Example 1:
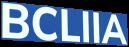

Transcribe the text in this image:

BCLIIA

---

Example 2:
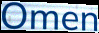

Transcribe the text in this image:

Omen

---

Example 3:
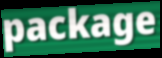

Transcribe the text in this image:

package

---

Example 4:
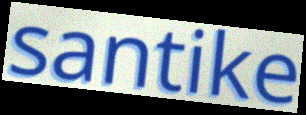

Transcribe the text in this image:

santike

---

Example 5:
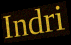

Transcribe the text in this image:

Indri